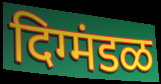
दिग्मंडळ